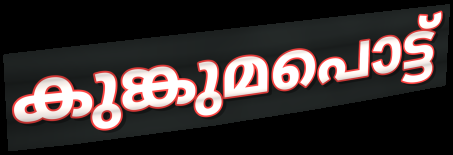
കുങ്കുമപൊട്ട്